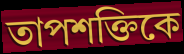
তাপশক্তিকে